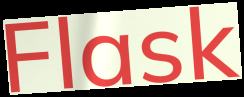
Flask